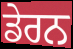
ਡੇਰਨ